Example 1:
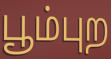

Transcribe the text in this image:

பூம்புற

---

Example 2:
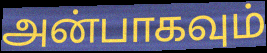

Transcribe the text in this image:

அன்பாகவும்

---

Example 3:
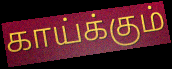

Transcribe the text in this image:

காய்க்கும்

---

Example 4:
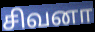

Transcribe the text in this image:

சிவனா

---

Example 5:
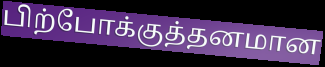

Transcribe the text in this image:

பிற்போக்குத்தனமான